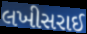
લખીસરાઈ